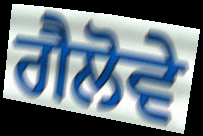
ਗੈਲੋਵੇ